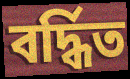
বৰ্দ্ধিত